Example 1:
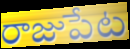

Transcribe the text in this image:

రాజుపేట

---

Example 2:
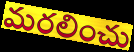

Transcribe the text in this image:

మరలించు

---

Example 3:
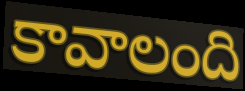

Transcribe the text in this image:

కావాలంది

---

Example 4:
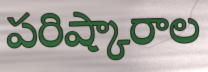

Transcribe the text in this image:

పరిష్కారాల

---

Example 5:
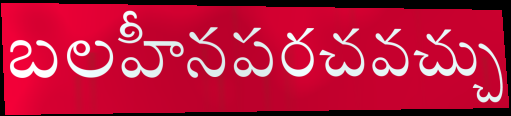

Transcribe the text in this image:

బలహీనపరచవచ్చు